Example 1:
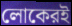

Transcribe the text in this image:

লোকেরই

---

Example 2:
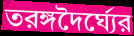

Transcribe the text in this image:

তরঙ্গদৈর্ঘ্যের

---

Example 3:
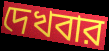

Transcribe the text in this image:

দেখবার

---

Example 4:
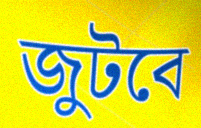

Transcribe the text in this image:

জুটবে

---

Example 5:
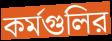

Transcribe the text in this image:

কর্মগুলির